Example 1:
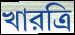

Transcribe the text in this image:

খারত্রি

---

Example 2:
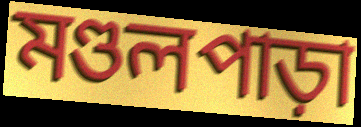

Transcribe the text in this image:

মণ্ডলপাড়া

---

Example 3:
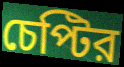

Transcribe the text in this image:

চেপ্টির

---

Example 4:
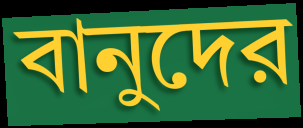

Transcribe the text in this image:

বানুদের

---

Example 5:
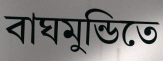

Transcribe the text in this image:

বাঘমুন্ডিতে